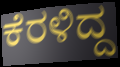
ಕೆರಳಿದ್ದ